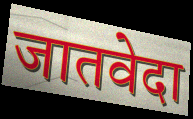
जातवेदा